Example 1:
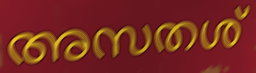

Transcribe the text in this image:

അസതശ്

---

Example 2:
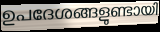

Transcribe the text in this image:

ഉപദേശങ്ങളുണ്ടായി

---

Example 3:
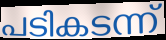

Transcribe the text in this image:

പടികടന്ന്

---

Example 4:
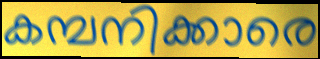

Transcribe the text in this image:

കമ്പനിക്കാരെ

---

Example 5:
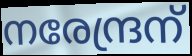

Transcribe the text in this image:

നരേന്ദ്രന്